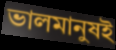
ভালমানুষই